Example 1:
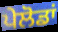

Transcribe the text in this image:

ਪੇਲੋਡਾਂ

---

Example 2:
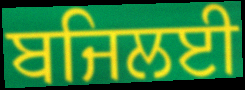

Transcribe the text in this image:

ਬਜਿਲਈ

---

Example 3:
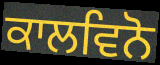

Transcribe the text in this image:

ਕਾਲਵਿਨੋ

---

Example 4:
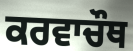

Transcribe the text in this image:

ਕਰਵਾਚੌਥ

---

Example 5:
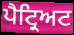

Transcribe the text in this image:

ਪੈਟ੍ਰਿਅਟ